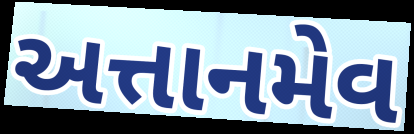
અત્તાનમેવ